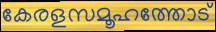
കേരളസമൂഹത്തോട്